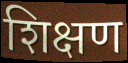
शिक्षण